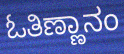
ಓತಿಣ್ಣಾನಂ